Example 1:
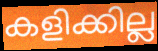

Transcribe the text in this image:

കളിക്കില്ല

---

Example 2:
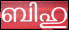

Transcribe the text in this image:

ബിഹു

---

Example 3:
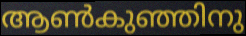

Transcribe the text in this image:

ആൺകുഞ്ഞിനു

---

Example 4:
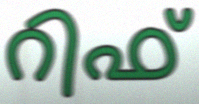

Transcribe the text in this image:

റിഫ്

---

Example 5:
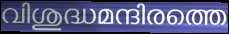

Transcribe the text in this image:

വിശുദ്ധമന്ദിരത്തെ